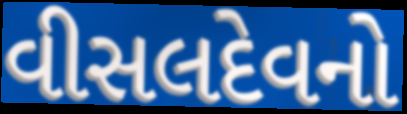
વીસલદેવનો